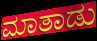
ಮಾತಾಡು